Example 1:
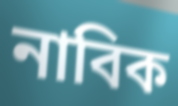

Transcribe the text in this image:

নাবিক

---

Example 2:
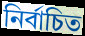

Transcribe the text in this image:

নির্বাচিত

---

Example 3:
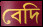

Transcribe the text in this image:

বেদি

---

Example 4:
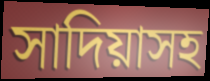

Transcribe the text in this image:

সাদিয়াসহ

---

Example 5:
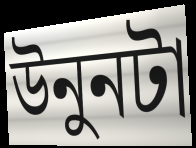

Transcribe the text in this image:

উনুনটা